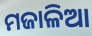
ମଜାଳିଆ